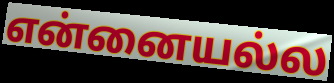
என்னையல்ல